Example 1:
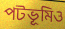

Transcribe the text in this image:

পটভূমিও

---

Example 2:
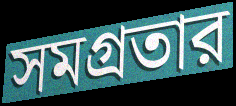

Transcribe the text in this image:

সমগ্রতার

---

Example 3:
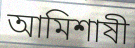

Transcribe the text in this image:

আমিশাষী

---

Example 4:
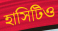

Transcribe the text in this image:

হাসিটিও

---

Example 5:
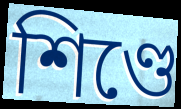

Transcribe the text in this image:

শিণ্ডে